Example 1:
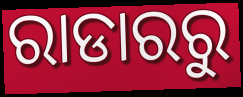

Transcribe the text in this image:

ରାଡାରରୁ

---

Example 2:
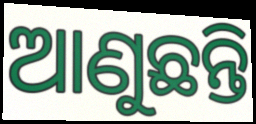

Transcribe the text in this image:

ଆଣୁଛନ୍ତି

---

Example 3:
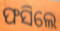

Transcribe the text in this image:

ଫସିଲେ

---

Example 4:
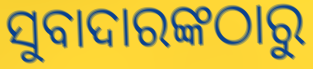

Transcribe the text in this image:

ସୁବାଦାରଙ୍କଠାରୁ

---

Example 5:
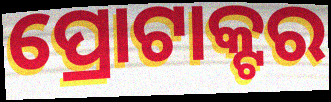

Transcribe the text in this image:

ପ୍ରୋଟାକ୍ଟର